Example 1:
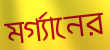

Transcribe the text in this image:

মর্গ্যানের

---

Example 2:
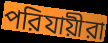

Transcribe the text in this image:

পরিযায়ীরা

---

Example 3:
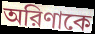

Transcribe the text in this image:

অরিণাকে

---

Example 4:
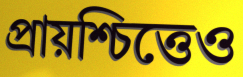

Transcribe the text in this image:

প্রায়শ্চিত্তেও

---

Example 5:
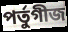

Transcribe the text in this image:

পর্তুগীজ